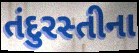
તંદુરસ્તીના